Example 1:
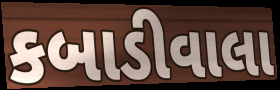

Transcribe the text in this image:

કબાડીવાલા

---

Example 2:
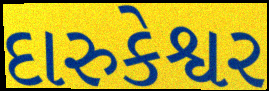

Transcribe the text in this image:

દારુકેશ્વર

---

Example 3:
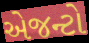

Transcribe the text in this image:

એજન્ટો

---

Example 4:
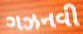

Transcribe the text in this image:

ગઝનવી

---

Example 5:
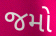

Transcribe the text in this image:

જમો